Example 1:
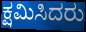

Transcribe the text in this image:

ಕ್ಷಮಿಸಿದರು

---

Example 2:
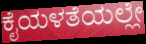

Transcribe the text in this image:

ಕೈಯಳತೆಯಲ್ಲೇ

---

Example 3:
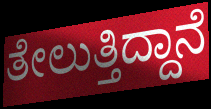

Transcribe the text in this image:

ತೇಲುತ್ತಿದ್ದಾನೆ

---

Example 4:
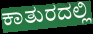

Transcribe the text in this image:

ಕಾತುರದಲ್ಲಿ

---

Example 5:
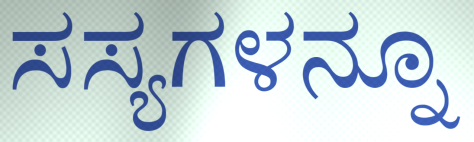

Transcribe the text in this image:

ಸಸ್ಯಗಳನ್ನೂ